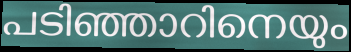
പടിഞ്ഞാറിനെയും